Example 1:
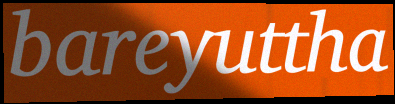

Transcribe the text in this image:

bareyuttha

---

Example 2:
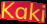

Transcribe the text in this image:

Kaki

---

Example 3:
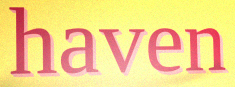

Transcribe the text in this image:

haven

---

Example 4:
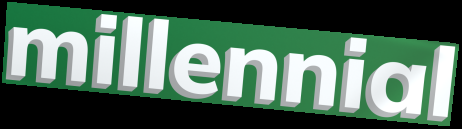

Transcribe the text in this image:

millennial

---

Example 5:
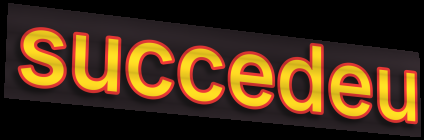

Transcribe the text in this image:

succedeu